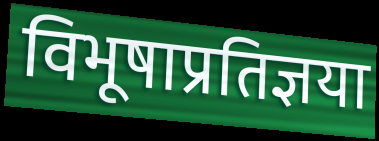
विभूषाप्रतिज्ञया